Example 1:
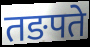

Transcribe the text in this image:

तङपते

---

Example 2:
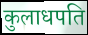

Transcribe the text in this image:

कुलाधपति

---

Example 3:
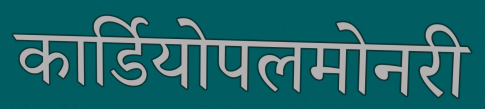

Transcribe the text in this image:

कार्डियोपलमोनरी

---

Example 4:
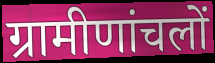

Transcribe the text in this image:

ग्रामीणांचलों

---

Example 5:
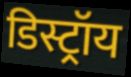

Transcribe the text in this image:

डिस्ट्रॉय